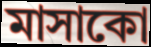
মাসাকো